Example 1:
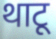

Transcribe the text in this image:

थाटू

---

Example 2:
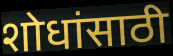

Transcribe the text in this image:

शोधांसाठी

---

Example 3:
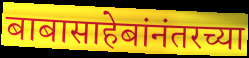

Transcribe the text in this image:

बाबासाहेबांनंतरच्या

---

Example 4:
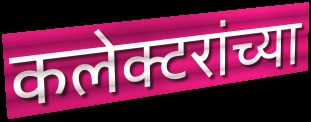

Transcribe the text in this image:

कलेक्टरांच्या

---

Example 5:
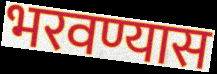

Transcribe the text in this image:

भरवण्यास